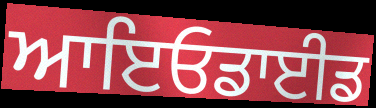
ਆਇਓਡਾਈਡ